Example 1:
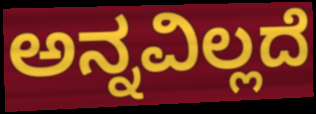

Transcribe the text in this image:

ಅನ್ನವಿಲ್ಲದೆ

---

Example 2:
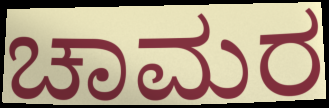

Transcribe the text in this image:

ಚಾಮರ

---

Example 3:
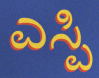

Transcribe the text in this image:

ಎಸ್ಪಿ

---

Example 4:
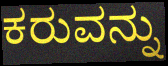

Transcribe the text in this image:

ಕರುವನ್ನು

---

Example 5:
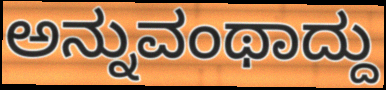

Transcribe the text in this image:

ಅನ್ನುವಂಥಾದ್ದು